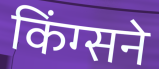
किंग्सने